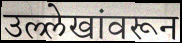
उल्लेखांवरून